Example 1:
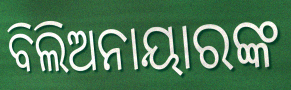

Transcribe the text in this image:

ବିଲିଅନାୟାରଙ୍କ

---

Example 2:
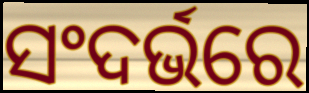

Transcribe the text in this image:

ସଂଦର୍ଭରେ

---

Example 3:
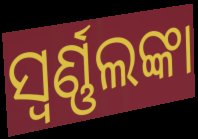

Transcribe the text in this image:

ସ୍ବର୍ଣ୍ଣଲଙ୍କା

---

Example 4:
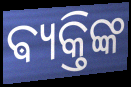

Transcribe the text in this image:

ଵ୍ୟକ୍ତିଙ୍କ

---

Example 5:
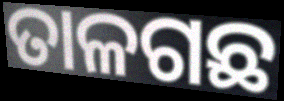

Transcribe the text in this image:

ତାଳଗଛ